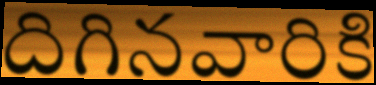
దిగినవారికి